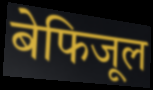
बेफिजूल